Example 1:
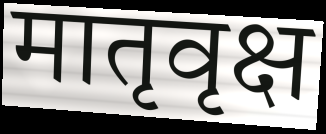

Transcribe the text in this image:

मातृवृक्ष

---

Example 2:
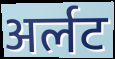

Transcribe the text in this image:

अर्लट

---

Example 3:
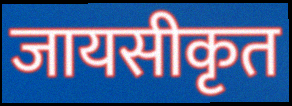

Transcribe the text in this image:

जायसीकृत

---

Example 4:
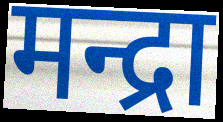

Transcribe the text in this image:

मन्द्रा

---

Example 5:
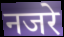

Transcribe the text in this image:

नजरे